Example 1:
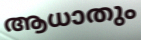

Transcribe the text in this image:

ആധാതും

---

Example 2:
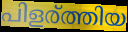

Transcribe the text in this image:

പിളര്ത്തിയ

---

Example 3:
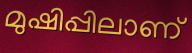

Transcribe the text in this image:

മുഷിപ്പിലാണ്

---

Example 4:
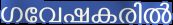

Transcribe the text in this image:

ഗവേഷകരിൽ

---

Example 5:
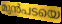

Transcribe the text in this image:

മുൻപടയെ